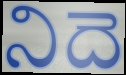
నిదె